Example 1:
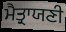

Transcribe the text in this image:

ਮੈਤ੍ਰਾਯਣੀ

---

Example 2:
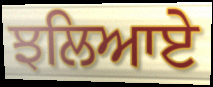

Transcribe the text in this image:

ਝਲਿਆਏ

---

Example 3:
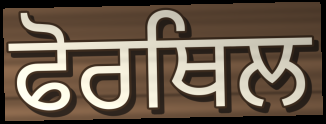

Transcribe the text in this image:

ਫੋਰਥਿਲ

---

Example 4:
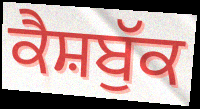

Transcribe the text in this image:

ਕੈਸ਼ਬੁੱਕ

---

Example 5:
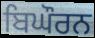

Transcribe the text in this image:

ਬਿਘੌਰਨ